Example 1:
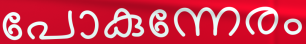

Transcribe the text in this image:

പോകുന്നേരം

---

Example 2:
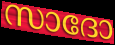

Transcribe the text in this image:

സാദോ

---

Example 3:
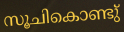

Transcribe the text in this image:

സൂചികൊണ്ടു്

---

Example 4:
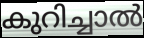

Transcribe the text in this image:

കുറിച്ചാൽ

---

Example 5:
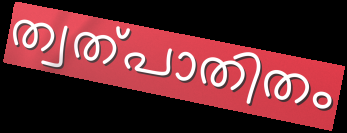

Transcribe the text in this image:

ത്വത്പാതിതം